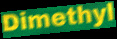
Dimethyl